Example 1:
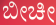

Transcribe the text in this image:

ಬೀಚೀ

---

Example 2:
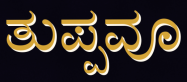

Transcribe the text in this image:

ತುಪ್ಪವೂ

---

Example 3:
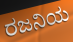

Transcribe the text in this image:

ರಜನಿಯ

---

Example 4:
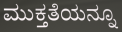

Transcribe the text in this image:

ಮುಕ್ತತೆಯನ್ನೂ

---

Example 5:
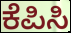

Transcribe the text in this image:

ಕೆಪಿಸಿ